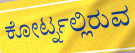
ಕೋರ್ಟ್ನಲ್ಲಿರುವ